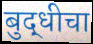
बुद्धीचा